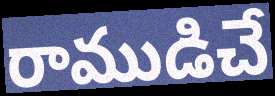
రాముడిచే